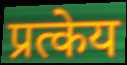
प्रत्केय